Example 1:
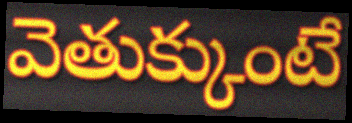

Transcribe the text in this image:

వెతుక్కుంటే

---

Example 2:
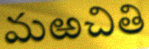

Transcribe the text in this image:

మఱచితి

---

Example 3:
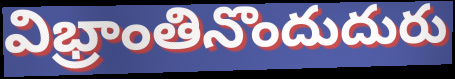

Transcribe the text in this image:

విభ్రాంతినొందుదురు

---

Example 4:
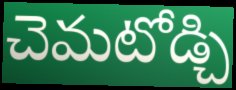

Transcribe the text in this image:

చెమటోడ్చి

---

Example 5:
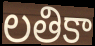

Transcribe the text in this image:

లతికా